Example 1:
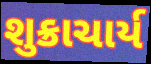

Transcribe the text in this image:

શુક્રાચાર્ય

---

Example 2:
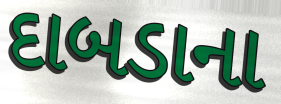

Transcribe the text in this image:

દાબડાના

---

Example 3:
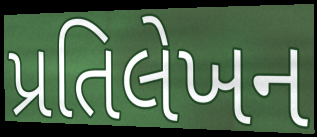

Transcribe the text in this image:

પ્રતિલેખન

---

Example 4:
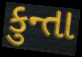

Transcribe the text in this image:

કુન્તા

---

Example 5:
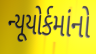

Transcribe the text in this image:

ન્યૂયોર્કમાંનો